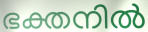
ഭക്തനിൽ